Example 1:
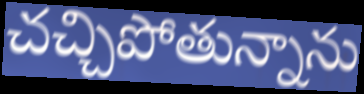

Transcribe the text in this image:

చచ్చిపోతున్నాను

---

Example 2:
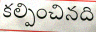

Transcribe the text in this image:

కల్పించినది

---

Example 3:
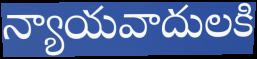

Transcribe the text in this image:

న్యాయవాదులకి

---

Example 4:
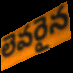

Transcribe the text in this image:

లెవరైన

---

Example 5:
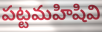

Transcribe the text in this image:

పట్టమహిషివి